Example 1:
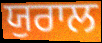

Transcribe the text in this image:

ਯੁਰਾਲ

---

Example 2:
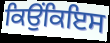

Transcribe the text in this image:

ਕਿਉਂਕਿਇਸ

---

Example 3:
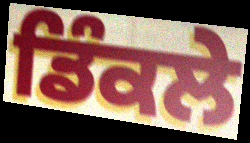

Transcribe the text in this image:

ਡਿੰਕਲੇ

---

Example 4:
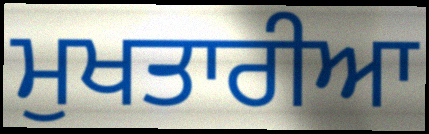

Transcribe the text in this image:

ਮੁਖਤਾਰੀਆ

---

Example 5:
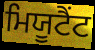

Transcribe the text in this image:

ਮਿਯੂਟੈਂਟ